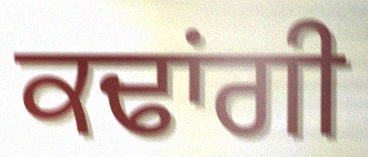
ਕਢਾਂਗੀ